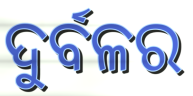
ଦୁର୍ବଳର